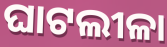
ଘାଟଲୀଳା